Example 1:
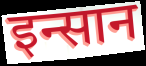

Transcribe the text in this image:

इन्सान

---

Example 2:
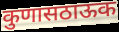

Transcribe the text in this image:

कुणासठाऊक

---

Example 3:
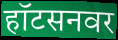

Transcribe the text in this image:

हॉटसनवर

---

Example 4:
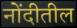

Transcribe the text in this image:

नोंदीतील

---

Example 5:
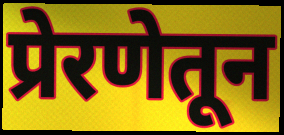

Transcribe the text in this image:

प्रेरणेतून